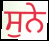
ਸੁਨੇ